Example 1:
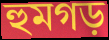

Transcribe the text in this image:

হুমগড়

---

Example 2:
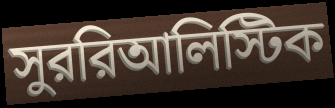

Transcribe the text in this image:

সুররিআলিস্টিক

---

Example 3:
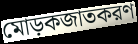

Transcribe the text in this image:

মোড়কজাতকরণ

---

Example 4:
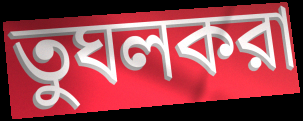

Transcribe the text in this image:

তুঘলকরা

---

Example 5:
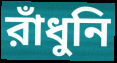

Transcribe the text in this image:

রাঁধুনি